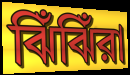
ঝিঁঝিঁরা